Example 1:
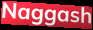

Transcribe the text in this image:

Naggash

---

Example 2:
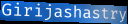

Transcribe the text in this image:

Girijashastry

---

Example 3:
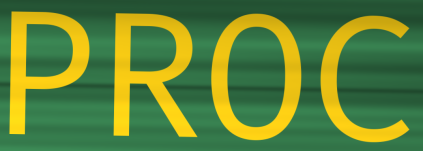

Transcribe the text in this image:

PROC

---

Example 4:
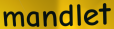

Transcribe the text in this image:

mandlet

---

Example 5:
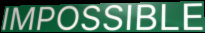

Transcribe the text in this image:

IMPOSSIBLE